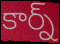
కార్న్